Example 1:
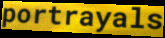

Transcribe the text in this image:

portrayals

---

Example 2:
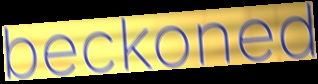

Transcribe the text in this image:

beckoned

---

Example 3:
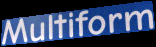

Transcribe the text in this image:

Multiform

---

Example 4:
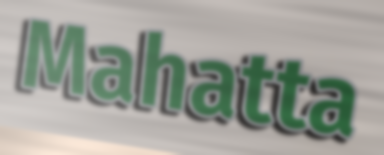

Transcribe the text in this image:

Mahatta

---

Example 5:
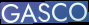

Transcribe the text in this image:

GASCO